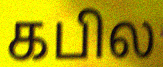
கபில